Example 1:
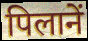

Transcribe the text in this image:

पिलानें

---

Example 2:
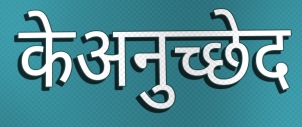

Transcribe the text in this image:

केअनुच्छेद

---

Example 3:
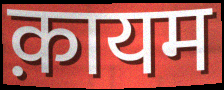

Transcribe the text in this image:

क़ायम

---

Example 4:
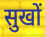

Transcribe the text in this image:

सुखों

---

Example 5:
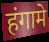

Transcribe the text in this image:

हंगामे